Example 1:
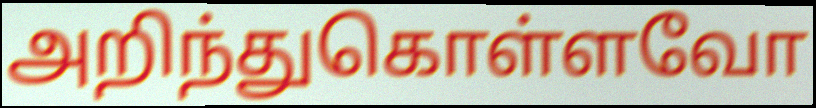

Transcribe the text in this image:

அறிந்துகொள்ளவோ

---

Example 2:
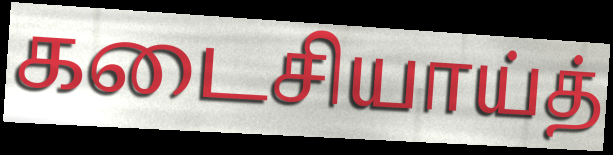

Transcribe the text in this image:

கடைசியாய்த்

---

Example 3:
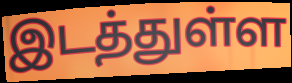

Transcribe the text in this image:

இடத்துள்ள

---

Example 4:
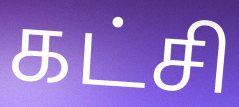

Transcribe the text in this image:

கட்சி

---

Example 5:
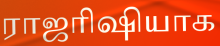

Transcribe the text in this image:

ராஜரிஷியாக